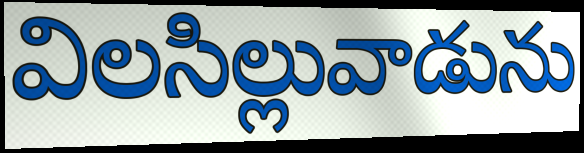
విలసిల్లువాడును